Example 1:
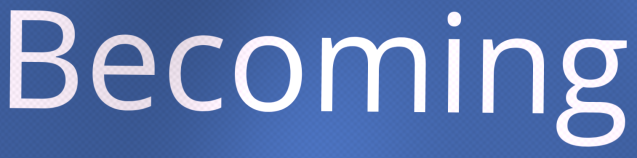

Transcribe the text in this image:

Becoming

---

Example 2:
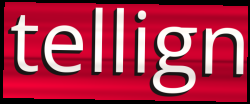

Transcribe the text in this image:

tellign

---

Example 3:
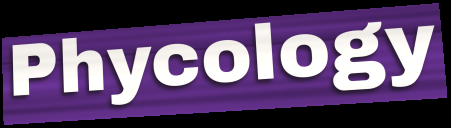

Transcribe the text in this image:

Phycology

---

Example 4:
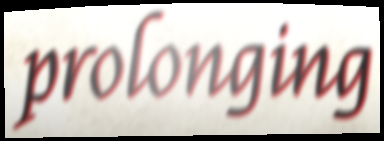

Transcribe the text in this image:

prolonging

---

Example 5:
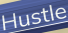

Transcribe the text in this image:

Hustle